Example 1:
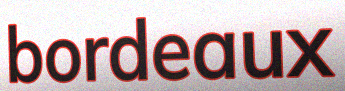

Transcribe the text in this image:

bordeaux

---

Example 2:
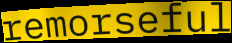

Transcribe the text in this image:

remorseful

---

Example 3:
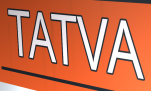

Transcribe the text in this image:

TATVA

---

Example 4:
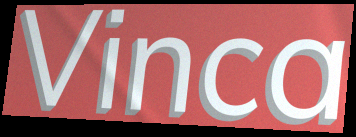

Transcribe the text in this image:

Vinca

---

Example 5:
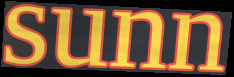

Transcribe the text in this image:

sunn